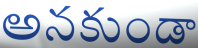
అనకుండా